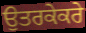
ਉਤਰਕੇਕਰੇ